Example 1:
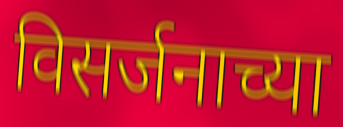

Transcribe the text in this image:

विसर्जनाच्या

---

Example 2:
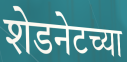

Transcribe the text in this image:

शेडनेटच्या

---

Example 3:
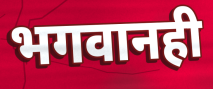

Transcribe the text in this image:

भगवानही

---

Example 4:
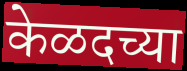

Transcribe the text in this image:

केळदच्या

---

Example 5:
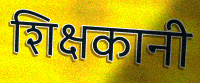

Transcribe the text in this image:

शिक्षकानी